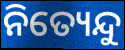
ନିତ୍ୟେନ୍ଦୁ